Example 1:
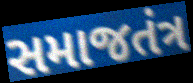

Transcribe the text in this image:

સમાજતંત્ર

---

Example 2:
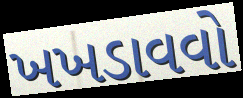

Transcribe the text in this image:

ખખડાવવો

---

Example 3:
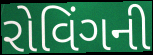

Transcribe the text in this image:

રોવિંગની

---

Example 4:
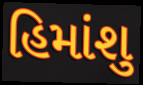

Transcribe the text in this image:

હિમાંશુ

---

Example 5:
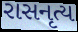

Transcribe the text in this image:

રાસનૃત્ય